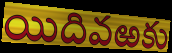
యిదివఱకు